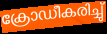
ക്രോഡീകരിച്ചു്